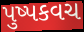
પુષ્પકવચ